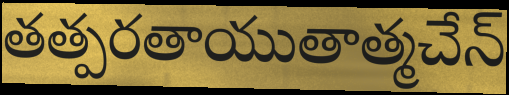
తత్పరతాయుతాత్మచేన్